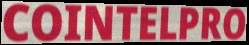
COINTELPRO